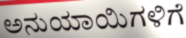
ಅನುಯಾಯಿಗಳಿಗೆ